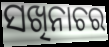
ସଖିନାଚର